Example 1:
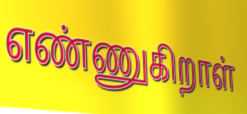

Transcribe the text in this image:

எண்ணுகிறாள்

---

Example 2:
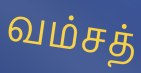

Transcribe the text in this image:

வம்சத்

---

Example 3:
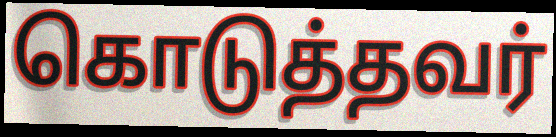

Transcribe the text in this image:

கொடுத்தவர்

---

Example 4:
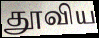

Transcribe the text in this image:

தூவிய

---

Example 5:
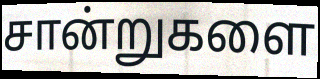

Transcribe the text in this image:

சான்றுகளை